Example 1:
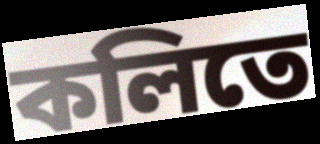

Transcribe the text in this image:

কলিতে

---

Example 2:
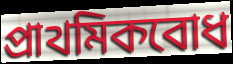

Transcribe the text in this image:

প্রাথমিকবোধ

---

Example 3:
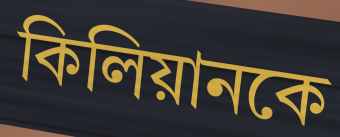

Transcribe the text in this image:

কিলিয়ানকে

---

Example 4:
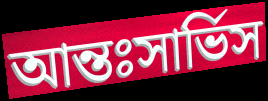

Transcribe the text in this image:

আন্তঃসার্ভিস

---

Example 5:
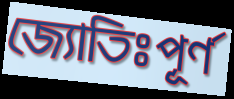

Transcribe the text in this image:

জ্যোতিঃপূর্ণ